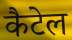
कैटेल